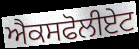
ਐਕਸਫੋਲੀਏਟ